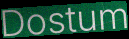
Dostum